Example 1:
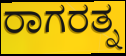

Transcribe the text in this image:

ರಾಗರತ್ನ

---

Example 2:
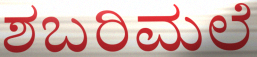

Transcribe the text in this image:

ಶಬರಿಮಲೆ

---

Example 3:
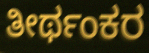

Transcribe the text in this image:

ತೀರ್ಥಂಕರ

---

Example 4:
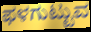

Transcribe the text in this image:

ಫಳಗುಟ್ಟುವ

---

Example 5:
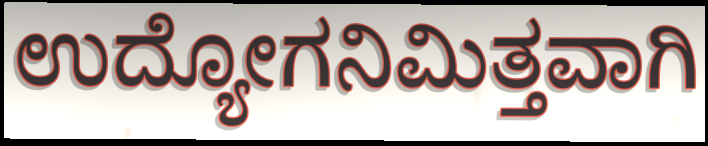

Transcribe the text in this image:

ಉದ್ಯೋಗನಿಮಿತ್ತವಾಗಿ